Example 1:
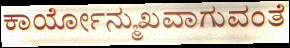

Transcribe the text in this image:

ಕಾರ್ಯೋನ್ಮುಖವಾಗುವಂತೆ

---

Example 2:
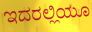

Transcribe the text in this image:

ಇದರಲ್ಲಿಯೂ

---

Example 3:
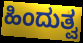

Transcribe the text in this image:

ಹಿಂದುತ್ವ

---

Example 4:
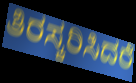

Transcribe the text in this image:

ತಿರಸ್ಕರಿಸಿದರೆ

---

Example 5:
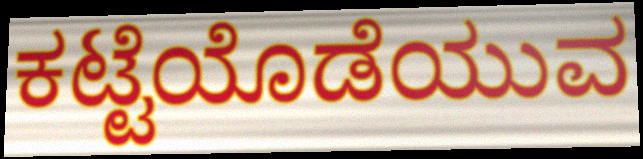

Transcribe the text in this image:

ಕಟ್ಟೆಯೊಡೆಯುವ